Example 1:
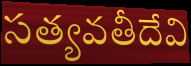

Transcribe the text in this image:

సత్యవతీదేవి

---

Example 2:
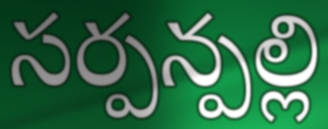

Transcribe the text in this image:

సర్పన్పల్లి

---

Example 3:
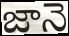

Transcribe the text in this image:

జానె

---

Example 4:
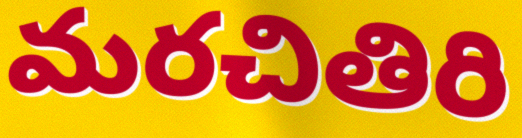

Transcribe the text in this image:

మరచితిరి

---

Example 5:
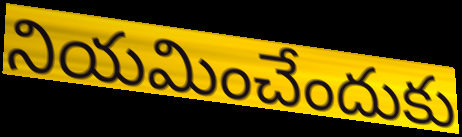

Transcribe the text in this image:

నియమించేందుకు